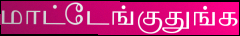
மாட்டேங்குதுங்க